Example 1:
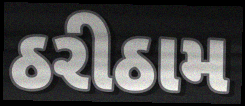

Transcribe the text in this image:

ઠરીઠામ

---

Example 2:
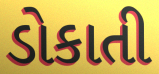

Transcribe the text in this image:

ડોકાતી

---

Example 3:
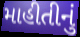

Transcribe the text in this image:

માહીતીનું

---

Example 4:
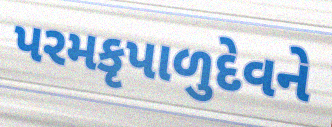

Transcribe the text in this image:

પરમકૃપાળુદેવને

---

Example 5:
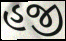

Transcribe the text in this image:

હજી